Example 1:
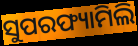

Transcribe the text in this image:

ସୁପରଫ୍ୟାମିଲି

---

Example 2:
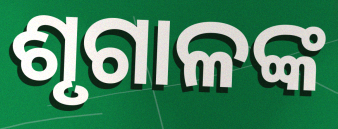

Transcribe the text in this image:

ଶୃଗାଳଙ୍କ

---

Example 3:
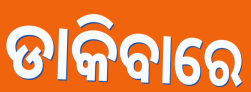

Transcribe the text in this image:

ଡାକିବାରେ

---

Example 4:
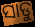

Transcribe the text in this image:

ସାଡୁ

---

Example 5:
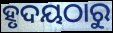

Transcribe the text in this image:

ହୃଦୟଠାରୁ